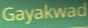
Gayakwad